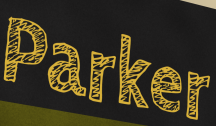
Parker